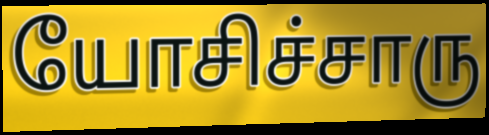
யோசிச்சாரு